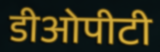
डीओपीटी